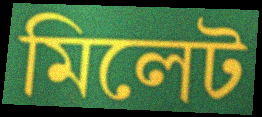
মিলেট